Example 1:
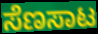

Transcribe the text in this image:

ಸೆಣಸಾಟ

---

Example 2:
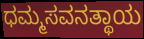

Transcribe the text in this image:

ಧಮ್ಮಸವನತ್ಥಾಯ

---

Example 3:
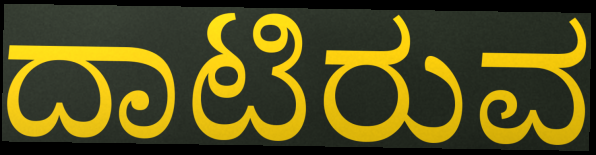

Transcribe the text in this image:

ದಾಟಿರುವ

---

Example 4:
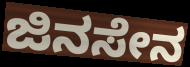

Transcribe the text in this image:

ಜಿನಸೇನ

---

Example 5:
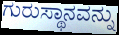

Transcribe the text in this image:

ಗುರುಸ್ಥಾನವನ್ನು